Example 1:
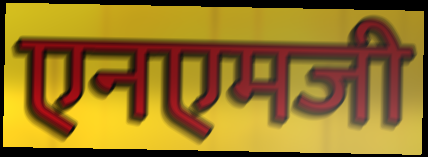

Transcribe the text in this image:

एनएमजी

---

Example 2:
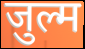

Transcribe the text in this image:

जुल्म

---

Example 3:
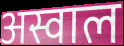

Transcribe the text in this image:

अस्वाल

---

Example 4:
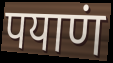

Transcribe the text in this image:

पयाणं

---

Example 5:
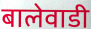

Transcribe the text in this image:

बालेवाडी